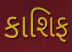
કાશિફ